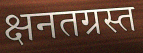
क्षनतग्रस्त